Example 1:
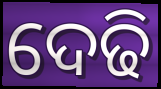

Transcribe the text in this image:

ଦେଢି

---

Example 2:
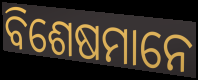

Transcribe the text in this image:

ବିଶେଷମାନେ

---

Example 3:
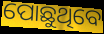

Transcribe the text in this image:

ପୋଛୁଥିବେ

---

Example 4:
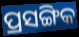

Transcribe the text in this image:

ପ୍ରସଙ୍ଗିକ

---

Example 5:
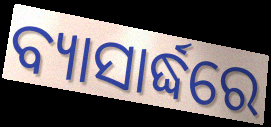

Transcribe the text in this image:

ବ୍ୟାସାର୍ଦ୍ଧରେ